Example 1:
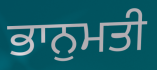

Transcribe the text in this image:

ਭਾਨੁਮਤੀ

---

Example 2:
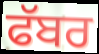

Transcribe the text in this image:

ਫੱਬਰ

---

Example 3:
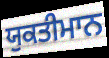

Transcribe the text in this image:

ਯੁਕਤੀਮਾਨ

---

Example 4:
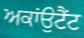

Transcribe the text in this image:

ਅਕਾਂਉਟੈਂਟ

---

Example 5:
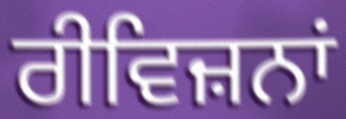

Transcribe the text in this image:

ਰੀਵਿਜ਼ਨਾਂ